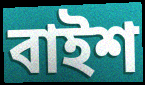
বাইশ